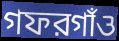
গফরগাঁও